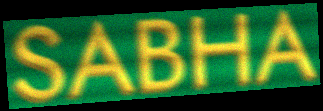
SABHA